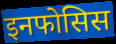
इनफोसिस